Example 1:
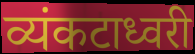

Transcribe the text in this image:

व्यंकटाध्वरी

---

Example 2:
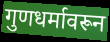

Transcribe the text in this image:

गुणधर्मावरून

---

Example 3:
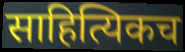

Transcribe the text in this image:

साहित्यिकच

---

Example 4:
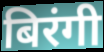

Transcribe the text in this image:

बिरंगी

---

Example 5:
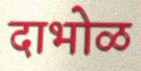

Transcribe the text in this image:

दाभोळ